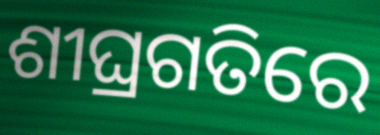
ଶୀଘ୍ରଗତିରେ